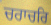
ਚਰਾਚਰਿ